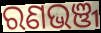
ରଣଭଞ୍ଜ